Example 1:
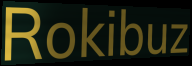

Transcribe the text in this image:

Rokibuz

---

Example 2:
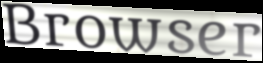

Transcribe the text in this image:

Browser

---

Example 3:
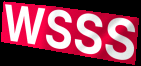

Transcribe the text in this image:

WSSS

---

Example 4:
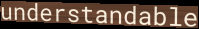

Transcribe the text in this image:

understandable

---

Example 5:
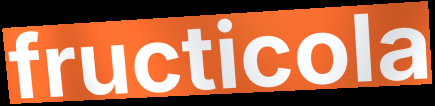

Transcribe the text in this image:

fructicola